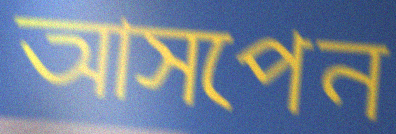
আসপেন